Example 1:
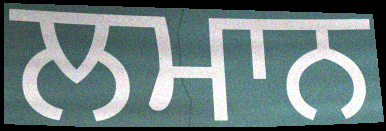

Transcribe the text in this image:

ਲਮਾਨ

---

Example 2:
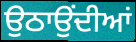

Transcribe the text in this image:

ਉਠਾਉਂਦੀਆਂ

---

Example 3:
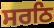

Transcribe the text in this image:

ਸਰਠਿ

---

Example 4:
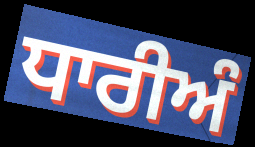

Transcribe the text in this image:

ਧਾਰੀਅੰ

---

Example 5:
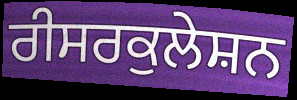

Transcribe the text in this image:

ਰੀਸਰਕੁਲੇਸ਼ਨ